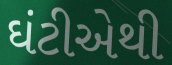
ઘંટીએથી